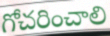
గోచరించాలి